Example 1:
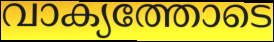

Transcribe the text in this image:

വാക്യത്തോടെ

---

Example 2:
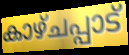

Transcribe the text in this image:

കാഴ്ചപ്പാട്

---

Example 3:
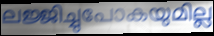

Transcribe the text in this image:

ലജ്ജിച്ചുപോകയുമില്ല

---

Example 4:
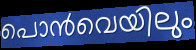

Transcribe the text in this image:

പൊൻവെയിലും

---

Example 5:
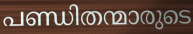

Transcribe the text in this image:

പണ്ഡിതന്മാരുടെ